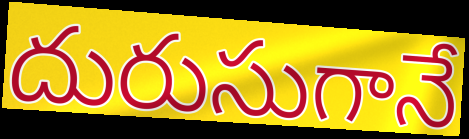
దురుసుగానే